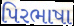
પિરભાષા